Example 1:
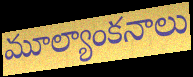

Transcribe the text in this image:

మూల్యాంకనాలు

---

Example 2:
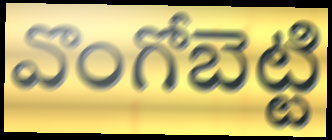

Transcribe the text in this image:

వొంగోబెట్టి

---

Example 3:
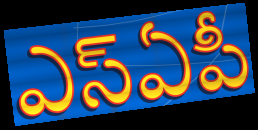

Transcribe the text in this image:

ఎస్ఏపీ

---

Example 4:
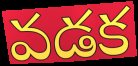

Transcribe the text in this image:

వడక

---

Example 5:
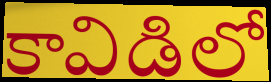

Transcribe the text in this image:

కావిడిలో